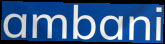
ambani